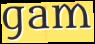
gam